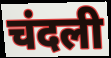
चंदली